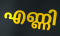
എണ്ണി